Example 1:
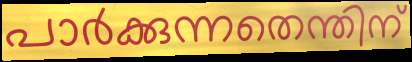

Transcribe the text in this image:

പാർക്കുന്നതെന്തിന്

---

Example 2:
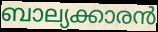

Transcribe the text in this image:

ബാല്യക്കാരൻ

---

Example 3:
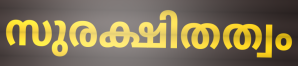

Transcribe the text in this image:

സുരക്ഷിതത്വം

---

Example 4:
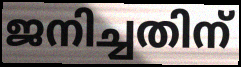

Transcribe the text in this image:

ജനിച്ചതിന്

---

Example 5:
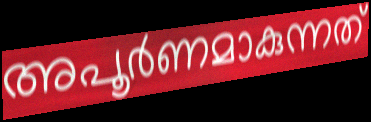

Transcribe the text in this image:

അപൂർണമാകുന്നത്